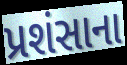
પ્રશંસાના